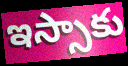
ఇస్సాకు